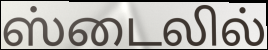
ஸ்டைலில்